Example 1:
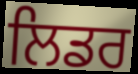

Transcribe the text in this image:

ਲਿਡਰ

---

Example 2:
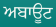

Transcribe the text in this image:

ਅਬਾਊਟ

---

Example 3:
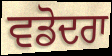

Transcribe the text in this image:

ਵਡੋਦਰਾ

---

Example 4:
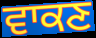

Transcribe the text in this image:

ਵਾਕਣ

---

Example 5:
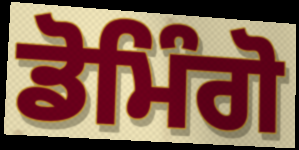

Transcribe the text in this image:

ਡੋਮਿੰਗੋ